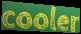
cooler